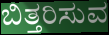
ಬಿತ್ತರಿಸುವ